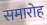
समारोह